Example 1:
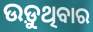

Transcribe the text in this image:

ଉଡ଼ୁଥିବାର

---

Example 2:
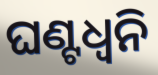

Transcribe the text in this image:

ଘଣ୍ଟଧ୍ୱନି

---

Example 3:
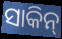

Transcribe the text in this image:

ସାକିନ୍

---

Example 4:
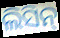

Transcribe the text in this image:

ଲିସିନ୍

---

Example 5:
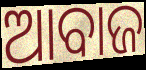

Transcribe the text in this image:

ଆବାଜ